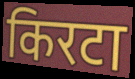
किरटा